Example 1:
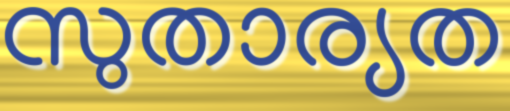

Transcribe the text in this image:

സുതാര്യത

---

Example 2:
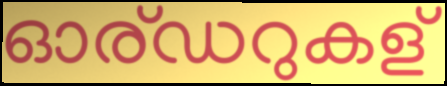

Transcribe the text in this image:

ഓര്ഡറുകള്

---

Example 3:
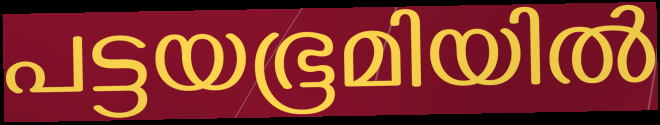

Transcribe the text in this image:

പട്ടയഭൂമിയിൽ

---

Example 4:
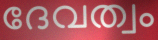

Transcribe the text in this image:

ദേവത്വം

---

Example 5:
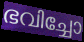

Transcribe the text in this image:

ഭവിച്ചോ